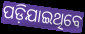
ପଡ଼ିଯାଇଥିବେ